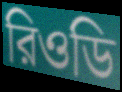
রিওডি